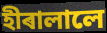
হীৰালালে